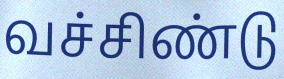
வச்சிண்டு